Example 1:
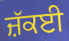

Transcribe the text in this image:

ਜ਼ੱਕਈ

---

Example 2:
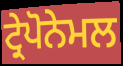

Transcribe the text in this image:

ਟ੍ਰੇਪੋਨੇਮਲ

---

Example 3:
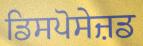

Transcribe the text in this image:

ਡਿਸਪੋਸੇਜ਼ਡ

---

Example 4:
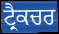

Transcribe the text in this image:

ਟ੍ਰੈਕਚਰ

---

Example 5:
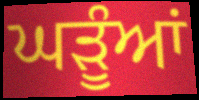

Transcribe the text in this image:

ਘੜੂੰਆਂ